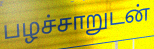
பழச்சாறுடன்